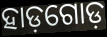
ହାଡ଼ଗୋଡ଼